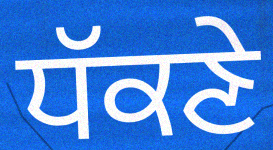
ਧੱਕਣੇ